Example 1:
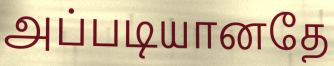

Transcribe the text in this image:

அப்படியானதே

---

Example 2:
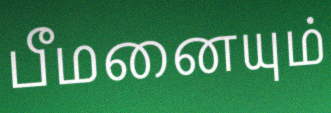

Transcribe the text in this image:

பீமனையும்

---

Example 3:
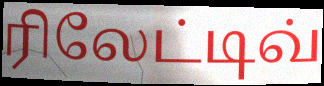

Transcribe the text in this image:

ரிலேட்டிவ்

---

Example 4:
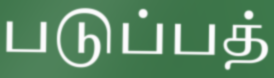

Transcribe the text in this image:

படுப்பத்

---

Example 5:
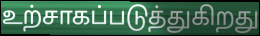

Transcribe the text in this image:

உற்சாகப்படுத்துகிறது